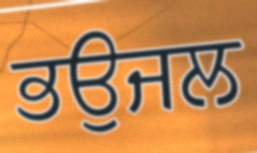
ਭਉਜਲ